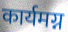
कार्यमग्न